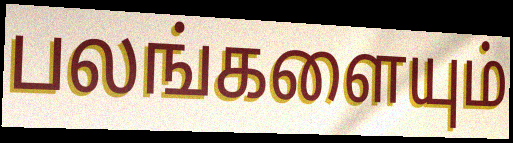
பலங்களையும்